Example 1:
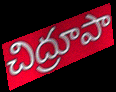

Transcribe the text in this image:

చిద్రూపా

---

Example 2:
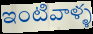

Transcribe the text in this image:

ఇంటివాళ్ళ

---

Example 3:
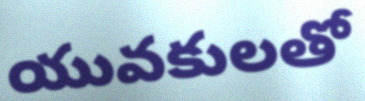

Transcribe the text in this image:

యువకులతో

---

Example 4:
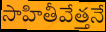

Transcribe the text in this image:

సాహితీవేత్తనే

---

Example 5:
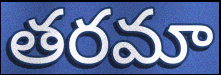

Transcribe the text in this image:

తరమా